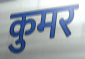
कुमर